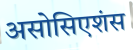
असोसिएशंस